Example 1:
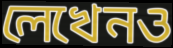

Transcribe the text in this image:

লেখেনও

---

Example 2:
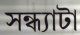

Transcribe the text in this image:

সন্ধ্যাটা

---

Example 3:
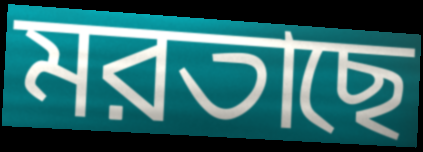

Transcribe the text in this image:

মরতাছে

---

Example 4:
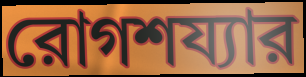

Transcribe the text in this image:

রোগশয্যার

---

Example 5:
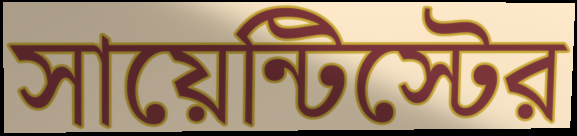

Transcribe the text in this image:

সায়েন্টিস্টের